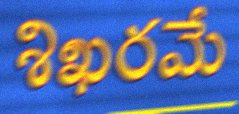
శిఖరమే